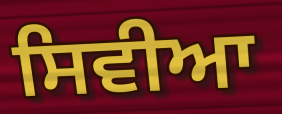
ਸਿਵੀਆ